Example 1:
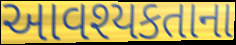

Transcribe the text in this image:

આવશ્યકતાના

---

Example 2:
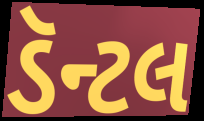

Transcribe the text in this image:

ડૅન્ટલ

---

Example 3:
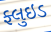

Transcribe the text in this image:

ફ્લુઇડ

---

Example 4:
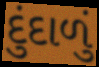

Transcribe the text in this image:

દુંદાળું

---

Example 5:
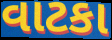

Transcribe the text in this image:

વાટકા